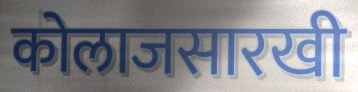
कोलाजसारखी